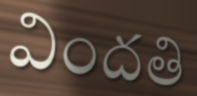
విందతి